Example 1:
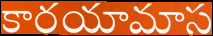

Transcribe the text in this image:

కారయామాస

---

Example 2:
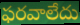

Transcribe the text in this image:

ఫరవాలేదు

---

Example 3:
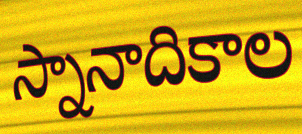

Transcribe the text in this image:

స్నానాదికాల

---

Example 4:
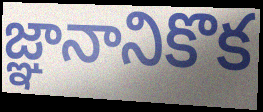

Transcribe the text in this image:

జ్ఞానానికొక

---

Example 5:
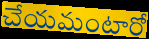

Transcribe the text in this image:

చేయమంటారో